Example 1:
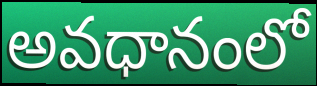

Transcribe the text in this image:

అవధానంలో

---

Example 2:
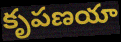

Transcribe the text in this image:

కృపణయా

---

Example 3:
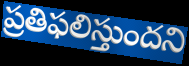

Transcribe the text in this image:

ప్రతిఫలిస్తుందని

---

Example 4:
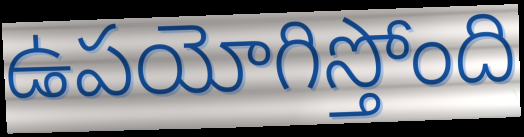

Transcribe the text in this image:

ఉపయోగిస్తోంది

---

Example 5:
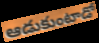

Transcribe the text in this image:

ఆడుకుంటాడో